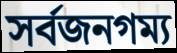
সর্বজনগম্য